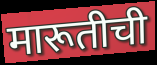
मारूतीची